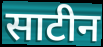
साटीन